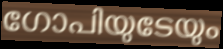
ഗോപിയുടേയും